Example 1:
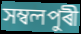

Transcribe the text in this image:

সম্বলপুৰী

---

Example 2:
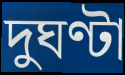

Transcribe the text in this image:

দুঘণ্টা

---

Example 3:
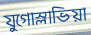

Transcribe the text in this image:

যুগোস্লাভিয়া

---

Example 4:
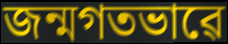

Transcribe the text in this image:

জন্মগতভাৱে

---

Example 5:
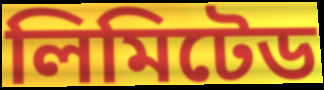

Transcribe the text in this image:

লিমিটেড